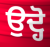
ਉਦ੍ਹੋ